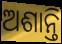
ଅଶାନ୍ତି